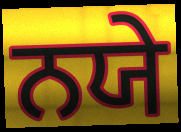
ਨਯੇ